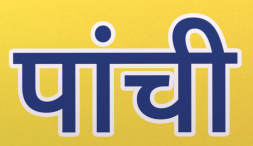
पांची